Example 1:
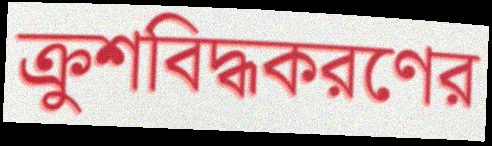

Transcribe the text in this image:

ক্রুশবিদ্ধকরণের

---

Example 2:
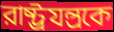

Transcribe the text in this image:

রাষ্ট্রযন্ত্রকে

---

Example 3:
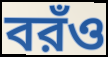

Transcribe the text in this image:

বরঁও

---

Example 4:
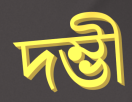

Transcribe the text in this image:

দম্ভী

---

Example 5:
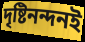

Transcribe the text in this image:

দৃষ্টিনন্দনই